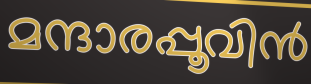
മന്ദാരപ്പൂവിൻ